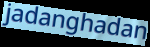
jadanghadan